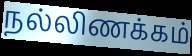
நல்லிணக்கம்